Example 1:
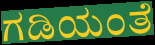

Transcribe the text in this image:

ಗಡಿಯಂತೆ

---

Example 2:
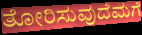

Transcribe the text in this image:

ತೋರಿಸುವುದೆಮಗೆ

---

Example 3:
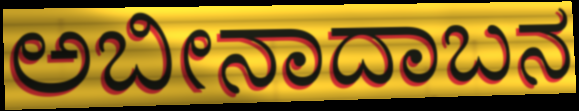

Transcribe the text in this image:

ಅಬೀನಾದಾಬನ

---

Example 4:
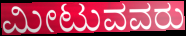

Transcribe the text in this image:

ಮೀಟುವವರು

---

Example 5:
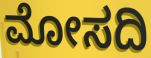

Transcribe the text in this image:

ಮೋಸದಿ